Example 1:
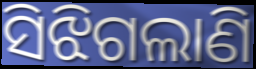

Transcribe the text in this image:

ସିଝିଗଲାଣି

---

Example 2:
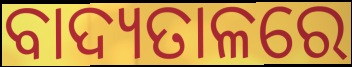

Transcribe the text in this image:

ବାଦ୍ୟତାଳରେ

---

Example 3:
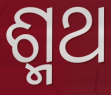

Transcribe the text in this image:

ଶ୍ମଥ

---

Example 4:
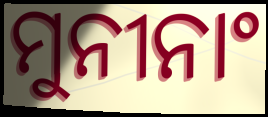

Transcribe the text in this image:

ମୁନୀନାଂ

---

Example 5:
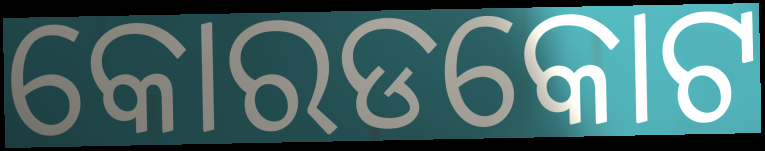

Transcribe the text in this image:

କୋରଡକୋଟ